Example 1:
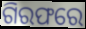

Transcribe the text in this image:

ଗିରଫରେ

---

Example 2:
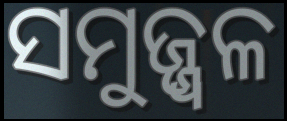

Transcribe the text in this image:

ସମୁଜ୍ଜ୍ୱଳ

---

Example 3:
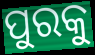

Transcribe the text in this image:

ପୁରକୁ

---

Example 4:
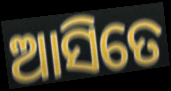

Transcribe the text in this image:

ଆସିତେ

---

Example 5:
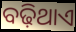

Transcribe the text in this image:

ବଢ଼ିଥାଏ